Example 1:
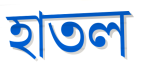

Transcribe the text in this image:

হাতল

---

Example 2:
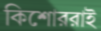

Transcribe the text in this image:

কিশোররাই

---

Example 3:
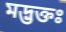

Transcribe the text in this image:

মদ্ভক্তঃ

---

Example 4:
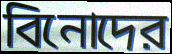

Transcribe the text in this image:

বিনোদের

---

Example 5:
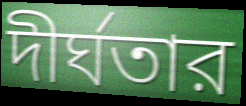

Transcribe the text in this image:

দীর্ঘতার